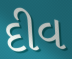
દીવ